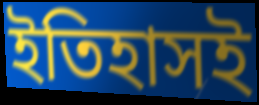
ইতিহাসই